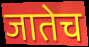
जातेच